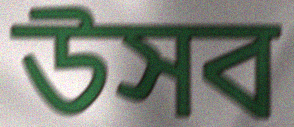
উসব